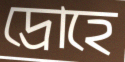
দ্রোহে